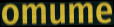
omume